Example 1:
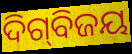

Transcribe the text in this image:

ଦିଗ୍‌ବିଜୟ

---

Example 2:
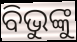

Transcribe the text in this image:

ବିଭୁଙ୍କୁ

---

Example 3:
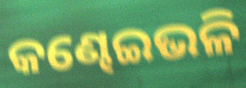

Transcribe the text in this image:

କଣ୍ଢେଇଭଳି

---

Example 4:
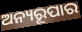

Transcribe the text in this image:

ଅନ୍ୟରୂପାର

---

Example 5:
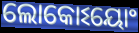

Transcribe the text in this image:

ଲୋକୋଽୟୋଂ